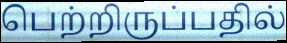
பெற்றிருப்பதில்